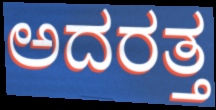
ಅದರತ್ತ